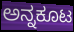
ಅನ್ನಕೂಟ